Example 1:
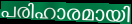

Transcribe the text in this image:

പരിഹാരമായി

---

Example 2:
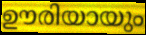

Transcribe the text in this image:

ഊരിയായും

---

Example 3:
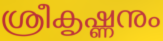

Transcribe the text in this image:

ശ്രീകൃഷ്ണനും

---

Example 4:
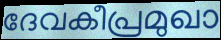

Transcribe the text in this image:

ദേവകീപ്രമുഖാ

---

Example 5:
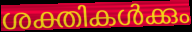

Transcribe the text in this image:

ശക്തികൾക്കും